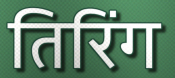
तिरिंग